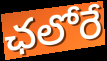
ఛలోరే